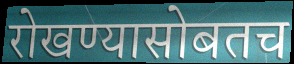
रोखण्यासोबतच